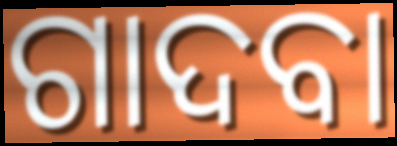
ଗାଦବା